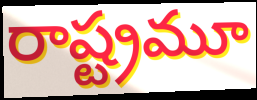
రాష్ట్రమూ